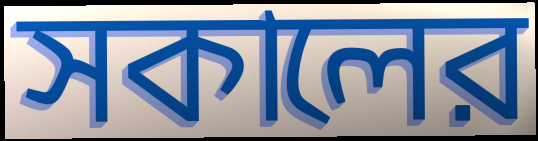
সকালের